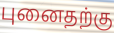
புனைதற்கு